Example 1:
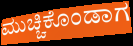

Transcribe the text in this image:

ಮುಚ್ಚಿಕೊಂಡಾಗ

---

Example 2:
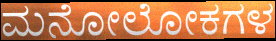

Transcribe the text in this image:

ಮನೋಲೋಕಗಳ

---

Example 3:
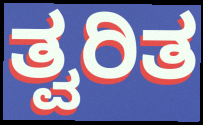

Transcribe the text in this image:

ತ್ವರಿತ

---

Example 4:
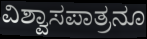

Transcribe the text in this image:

ವಿಶ್ವಾಸಪಾತ್ರನೂ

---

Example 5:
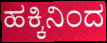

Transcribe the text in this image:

ಹಕ್ಕಿನಿಂದ